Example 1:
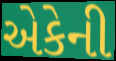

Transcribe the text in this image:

એકેની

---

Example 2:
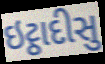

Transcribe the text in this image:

ઇટ્ઠાદીસુ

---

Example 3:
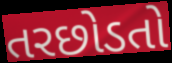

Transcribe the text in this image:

તરછોડતો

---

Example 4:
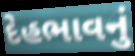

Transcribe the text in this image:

દેહભાવનું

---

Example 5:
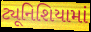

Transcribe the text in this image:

ટ્યૂનિશિયામાં